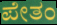
ಪೇತಂ